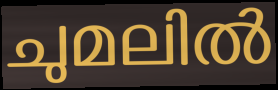
ചുമലിൽ